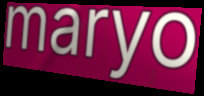
maryo